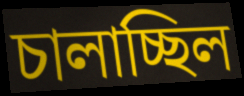
চালাচ্ছিল